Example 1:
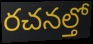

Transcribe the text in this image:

రచనల్తో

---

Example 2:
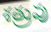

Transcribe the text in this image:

శత్రువు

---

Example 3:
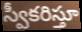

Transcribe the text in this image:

స్వీకరిస్తూ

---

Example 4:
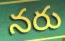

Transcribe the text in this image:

నరు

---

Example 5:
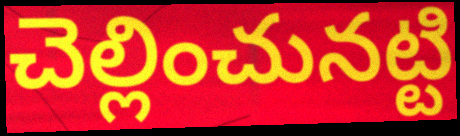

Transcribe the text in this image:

చెల్లించునట్టి